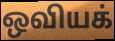
ஒவியக்